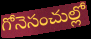
గోనెసంచుల్లో